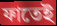
ফাতেই